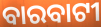
ବାରବାଟୀ